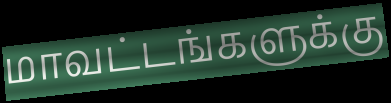
மாவட்டங்களுக்கு